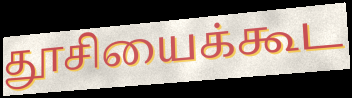
தூசியைக்கூட